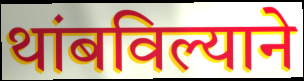
थांबविल्याने